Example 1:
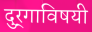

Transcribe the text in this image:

दुर्गाविषयी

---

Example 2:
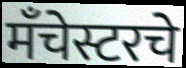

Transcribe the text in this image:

मँचेस्टरचे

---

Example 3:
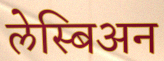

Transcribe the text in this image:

लेस्बिअन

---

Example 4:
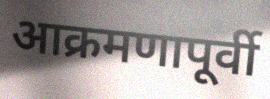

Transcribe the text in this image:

आक्रमणापूर्वी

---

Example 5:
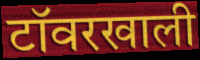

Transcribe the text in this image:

टॉवरखाली